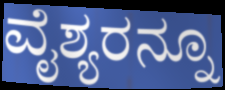
ವೈಶ್ಯರನ್ನೂ